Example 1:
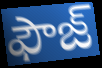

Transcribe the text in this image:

ఫౌజ్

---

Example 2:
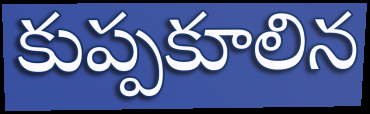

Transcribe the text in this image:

కుప్పకూలిన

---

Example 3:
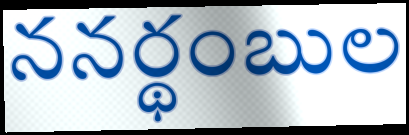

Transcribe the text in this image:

ననర్థంబుల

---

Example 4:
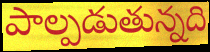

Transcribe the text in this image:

పాల్పడుతున్నది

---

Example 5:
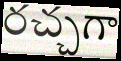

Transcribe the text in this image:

రచ్చగా